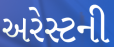
અરેસ્ટની